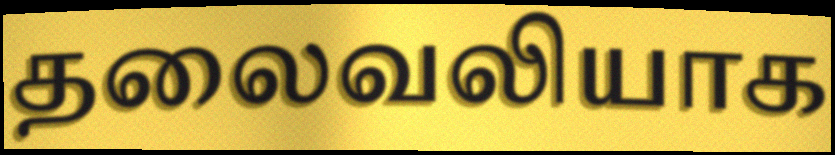
தலைவலியாக